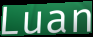
Luan